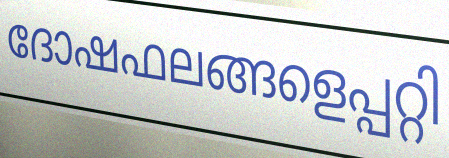
ദോഷഫലങ്ങളെപ്പറ്റി